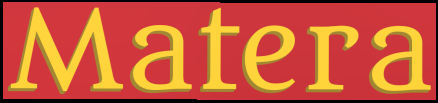
Matera